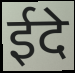
ईदे